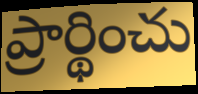
ప్రార్థించు